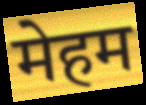
मेहम